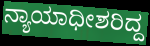
ನ್ಯಾಯಾಧೀಶರಿದ್ದ